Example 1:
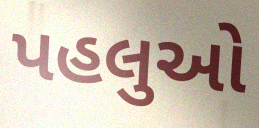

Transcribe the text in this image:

પહલુઓ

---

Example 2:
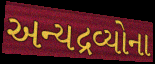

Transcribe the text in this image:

અન્યદ્રવ્યોના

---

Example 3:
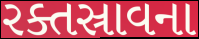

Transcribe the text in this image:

રક્તસ્રાવના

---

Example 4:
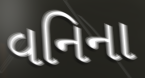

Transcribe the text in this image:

વનિના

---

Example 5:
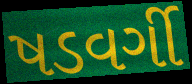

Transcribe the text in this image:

ષડવર્ગી